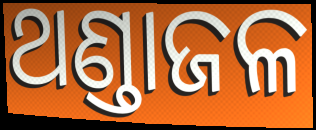
ଥଣ୍ଡାଜଳ